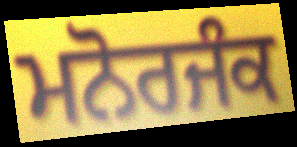
ਮਨੋਰਜੰਕ